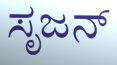
ಸೃಜನ್